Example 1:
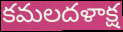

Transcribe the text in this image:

కమలదళాక్ష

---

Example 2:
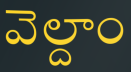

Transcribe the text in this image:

వెల్దాం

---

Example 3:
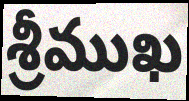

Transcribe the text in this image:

శ్రీముఖ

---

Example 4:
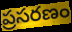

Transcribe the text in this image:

ప్రసరణం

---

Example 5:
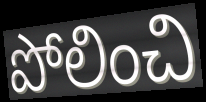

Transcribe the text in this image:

పోలించి